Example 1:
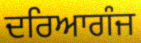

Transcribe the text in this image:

ਦਰਿਆਗੰਜ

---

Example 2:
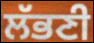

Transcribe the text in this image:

ਲੱਭਣੀ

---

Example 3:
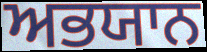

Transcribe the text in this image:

ਅਭਯਾਨ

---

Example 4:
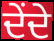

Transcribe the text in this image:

ਦੇਂਦੇ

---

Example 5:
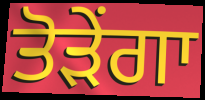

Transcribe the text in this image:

ਤੋੜੇਂਗਾ